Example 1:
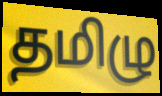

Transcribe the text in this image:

தமிழு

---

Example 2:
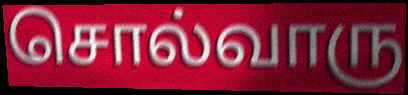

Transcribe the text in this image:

சொல்வாரு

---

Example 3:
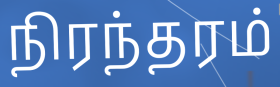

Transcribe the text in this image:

நிரந்தரம்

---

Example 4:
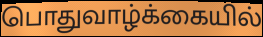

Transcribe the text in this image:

பொதுவாழ்க்கையில்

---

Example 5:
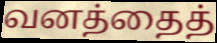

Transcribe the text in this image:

வனத்தைத்